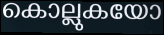
കൊല്ലുകയോ